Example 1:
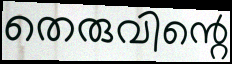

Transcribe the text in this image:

തെരുവിന്റെ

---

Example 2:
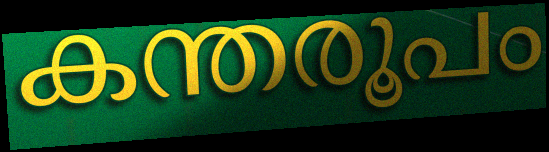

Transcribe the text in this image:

കന്തരൂപം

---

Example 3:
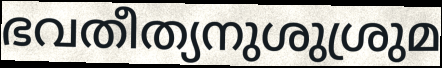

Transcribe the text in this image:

ഭവതീത്യനുശുശ്രുമ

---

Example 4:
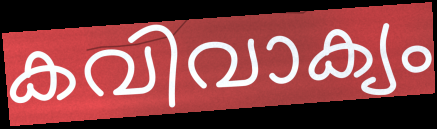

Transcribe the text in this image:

കവിവാക്യം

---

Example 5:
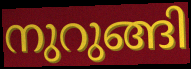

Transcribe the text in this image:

നുറുങ്ങി